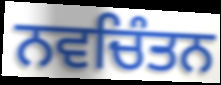
ਨਵਚਿੰਤਨ